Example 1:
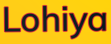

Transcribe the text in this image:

Lohiya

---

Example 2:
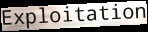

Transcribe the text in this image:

Exploitation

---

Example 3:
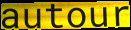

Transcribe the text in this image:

autour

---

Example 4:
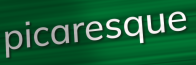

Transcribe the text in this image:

picaresque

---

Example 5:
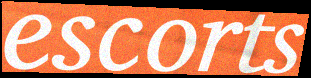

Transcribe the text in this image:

escorts